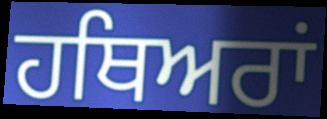
ਹਥਿਅਰਾਂ